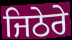
ਜਿਠੇਰੇ